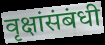
वृक्षांसंबंधी